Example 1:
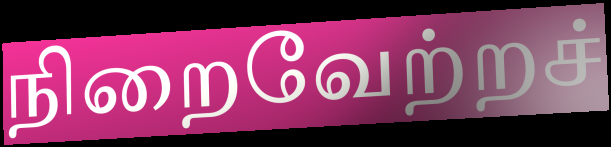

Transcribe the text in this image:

நிறைவேற்றச்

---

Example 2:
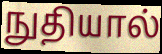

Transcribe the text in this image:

நுதியால்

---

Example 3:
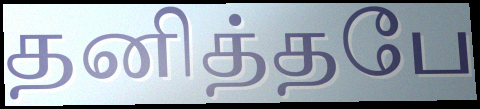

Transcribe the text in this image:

தனித்தபே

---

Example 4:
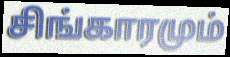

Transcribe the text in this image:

சிங்காரமும்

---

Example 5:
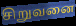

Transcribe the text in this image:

சிறுவனை